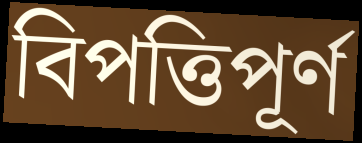
বিপত্তিপূর্ণ